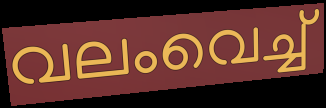
വലംവെച്ച്